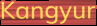
Kangyur